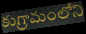
కుగ్రామంలోని